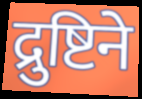
द्रुष्टिने